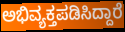
ಅಭಿವ್ಯಕ್ತಪಡಿಸಿದ್ದಾರೆ